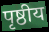
पृष्ठीय